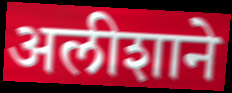
अलीशाने